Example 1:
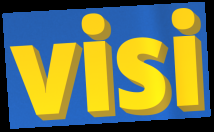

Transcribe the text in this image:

visi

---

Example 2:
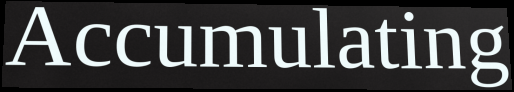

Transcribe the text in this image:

Accumulating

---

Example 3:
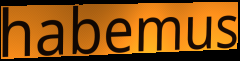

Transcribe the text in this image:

habemus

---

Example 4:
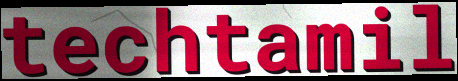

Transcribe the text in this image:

techtamil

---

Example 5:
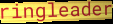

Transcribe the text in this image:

ringleader